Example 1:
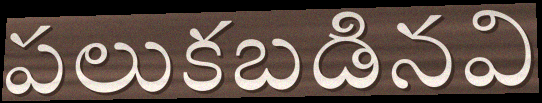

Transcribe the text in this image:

పలుకబడినవి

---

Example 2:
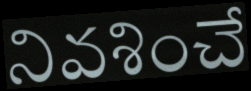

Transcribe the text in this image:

నివశించే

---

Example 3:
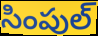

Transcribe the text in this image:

సింపుల్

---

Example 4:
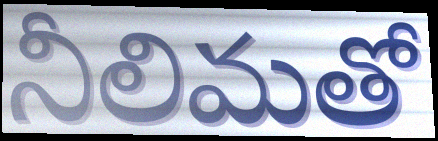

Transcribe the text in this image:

నీలిమతో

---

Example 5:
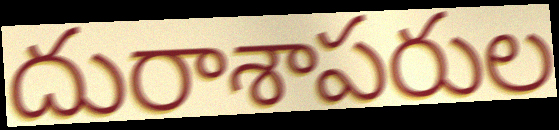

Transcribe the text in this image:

దురాశాపరుల